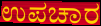
ಉಪಚಾರ